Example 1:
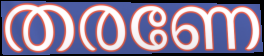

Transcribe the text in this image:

തരണേ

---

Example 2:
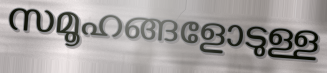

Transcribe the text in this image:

സമൂഹങ്ങളോടുള്ള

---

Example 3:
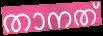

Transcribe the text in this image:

താനത്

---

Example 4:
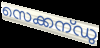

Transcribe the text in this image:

സെക്കന്ഡു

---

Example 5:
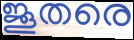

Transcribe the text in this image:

ജൂതരെ